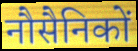
नौसैनिकों